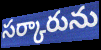
సర్కారును